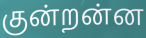
குன்றன்ன